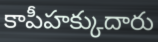
కాపీహక్కుదారు